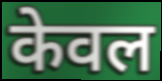
केवल